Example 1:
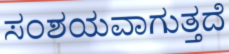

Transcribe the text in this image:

ಸಂಶಯವಾಗುತ್ತದೆ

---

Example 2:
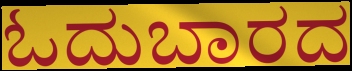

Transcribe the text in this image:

ಓದುಬಾರದ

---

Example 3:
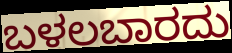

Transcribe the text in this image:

ಬಳಲಬಾರದು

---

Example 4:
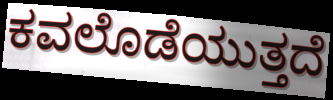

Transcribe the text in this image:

ಕವಲೊಡೆಯುತ್ತದೆ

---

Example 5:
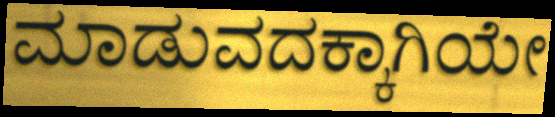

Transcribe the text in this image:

ಮಾಡುವದಕ್ಕಾಗಿಯೇ